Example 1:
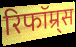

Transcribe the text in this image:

रिफॉम्र्स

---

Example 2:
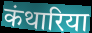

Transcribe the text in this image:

कंथारिया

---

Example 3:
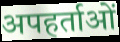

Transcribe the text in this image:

अपहर्ताओं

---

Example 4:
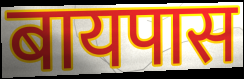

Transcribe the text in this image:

बायपास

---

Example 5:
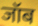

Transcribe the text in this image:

जॉब